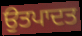
ਉਤਪਾਦਤ